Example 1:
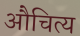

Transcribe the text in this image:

औचित्य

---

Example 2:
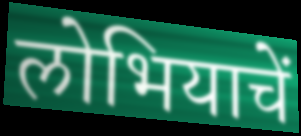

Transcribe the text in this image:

लोभियाचें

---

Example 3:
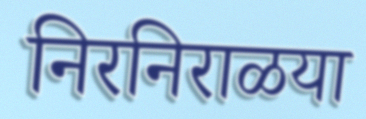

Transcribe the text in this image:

निरनिराळया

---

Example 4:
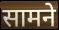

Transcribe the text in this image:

सामने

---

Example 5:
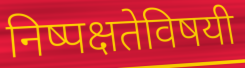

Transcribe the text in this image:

निष्पक्षतेविषयी